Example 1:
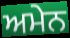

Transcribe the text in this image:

ਅਮੇਨ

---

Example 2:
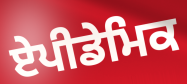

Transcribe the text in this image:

ਏਪੀਡੇਮਿਕ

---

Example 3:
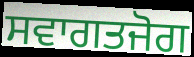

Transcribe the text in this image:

ਸਵਾਗਤਜੋਗ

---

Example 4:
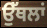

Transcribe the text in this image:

ਉੱਥਲਾਂ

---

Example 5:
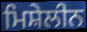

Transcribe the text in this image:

ਮਿਸ਼ੇਲੀਨ